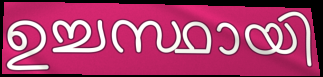
ഉച്ചസ്ഥായി